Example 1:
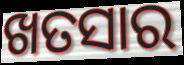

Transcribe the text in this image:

ଖତସାର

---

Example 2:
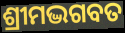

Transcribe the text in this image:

ଶ୍ରୀମଦ୍ଭଗବତ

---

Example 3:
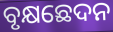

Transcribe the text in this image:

ବୃକ୍ଷଛେଦନ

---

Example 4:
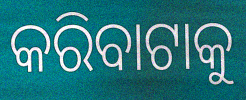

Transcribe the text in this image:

କରିବାଟାକୁ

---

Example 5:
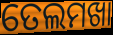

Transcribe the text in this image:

ତେଲମଖା